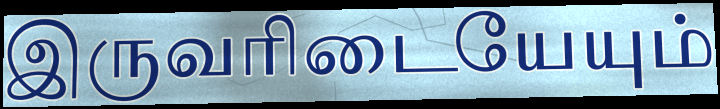
இருவரிடையேயும்